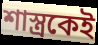
শাস্ত্রকেই